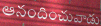
ఆనందించువాడు